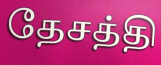
தேசத்தி